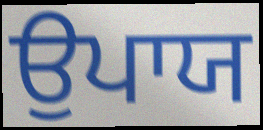
ਉਪਾਯ